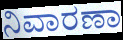
ನಿವಾರಣಾ